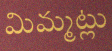
మిమ్మట్లు